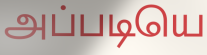
அப்படியெ